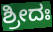
ಶ್ರೀದಃ